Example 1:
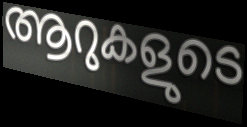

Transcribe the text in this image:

ആറുകളുടെ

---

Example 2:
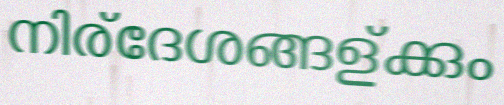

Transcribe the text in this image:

നിര്ദേശങ്ങള്ക്കും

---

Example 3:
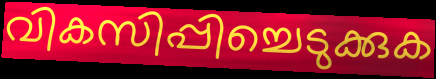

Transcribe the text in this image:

വികസിപ്പിച്ചെടുക്കുക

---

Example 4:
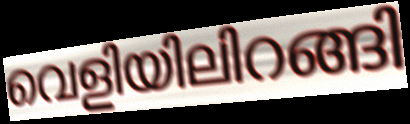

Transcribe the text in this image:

വെളിയിലിറങ്ങി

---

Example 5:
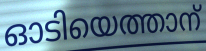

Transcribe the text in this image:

ഓടിയെത്താന്